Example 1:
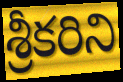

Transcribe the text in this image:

శ్రీకరిని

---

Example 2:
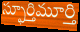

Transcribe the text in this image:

స్ఫూర్తిమూర్తి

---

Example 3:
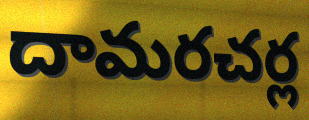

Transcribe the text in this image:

దామరచర్ల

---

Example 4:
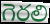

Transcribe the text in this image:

గెరలి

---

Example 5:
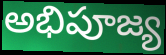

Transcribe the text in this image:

అభిపూజ్య